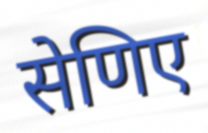
सेणिए